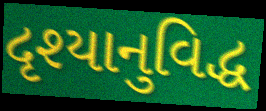
દૃશ્યાનુવિદ્ધ